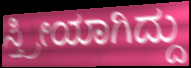
ಸ್ತ್ರೀಯಾಗಿದ್ದು